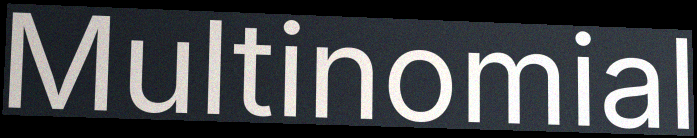
Multinomial